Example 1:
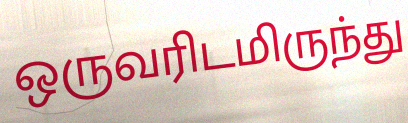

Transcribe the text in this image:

ஒருவரிடமிருந்து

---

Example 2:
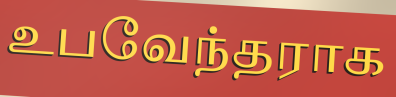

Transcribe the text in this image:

உபவேந்தராக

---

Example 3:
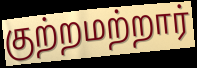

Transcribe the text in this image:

குற்றமற்றார்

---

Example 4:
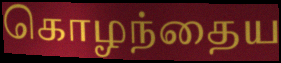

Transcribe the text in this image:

கொழந்தைய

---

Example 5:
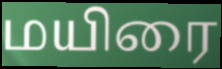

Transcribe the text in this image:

மயிரை